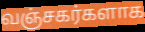
வஞ்சகர்களாக